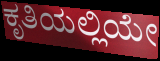
ಕೃತಿಯಲ್ಲಿಯೇ